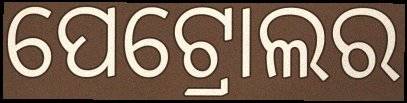
ପେଟ୍ରୋଲର